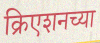
क्रिएशनच्या